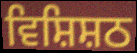
ਵਿਸ਼ਿਸ਼ਠ